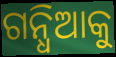
ଗନ୍ଧିଆକୁ